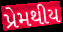
પ્રેમથીય